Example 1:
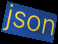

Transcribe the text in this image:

json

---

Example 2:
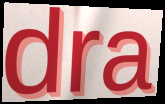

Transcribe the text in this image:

dra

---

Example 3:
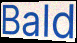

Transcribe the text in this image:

Bald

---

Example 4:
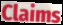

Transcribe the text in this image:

Claims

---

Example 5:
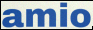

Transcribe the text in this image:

amio